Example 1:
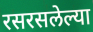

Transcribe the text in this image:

रसरसलेल्या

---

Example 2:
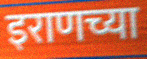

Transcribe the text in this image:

इराणच्या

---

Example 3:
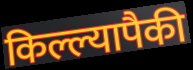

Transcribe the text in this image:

किल्ल्यापैकी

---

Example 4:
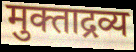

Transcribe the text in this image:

मुक्ताद्रव्य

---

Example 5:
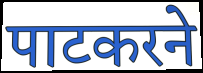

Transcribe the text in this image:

पाटकरने